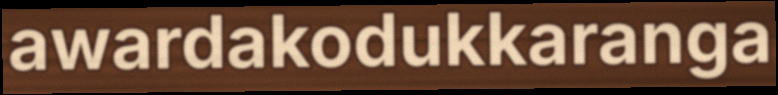
awardakodukkaranga